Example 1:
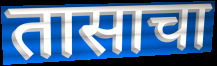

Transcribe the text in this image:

तासाचा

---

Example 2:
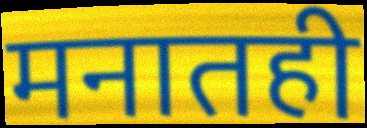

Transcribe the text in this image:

मनातही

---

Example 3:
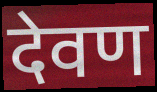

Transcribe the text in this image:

देवण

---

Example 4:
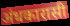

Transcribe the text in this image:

अंधकारासी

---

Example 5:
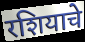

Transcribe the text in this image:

रशियाचे